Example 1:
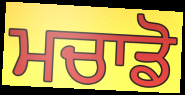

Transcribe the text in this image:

ਮਚਾਡੋ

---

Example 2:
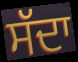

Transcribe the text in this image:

ਸੱਦਾ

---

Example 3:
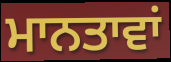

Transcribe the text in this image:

ਮਾਨਤਾਵਾਂ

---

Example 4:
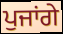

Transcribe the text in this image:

ਪੁਜਾਂਗੇ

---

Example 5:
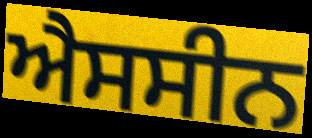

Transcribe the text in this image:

ਐਸਸੀਨ